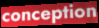
conception